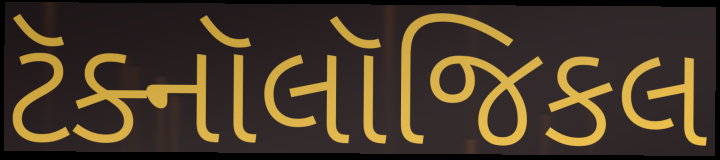
ટૅક્નૉલૉજિકલ